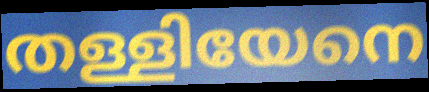
തള്ളിയേനെ